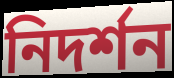
নিদর্শন